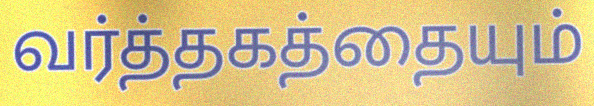
வர்த்தகத்தையும்